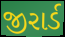
જીરાર્ડ